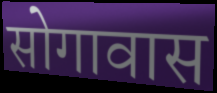
सोगावास